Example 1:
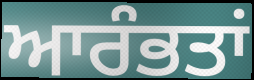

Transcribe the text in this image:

ਆਰੰਭਤਾਂ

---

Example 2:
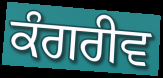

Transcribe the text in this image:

ਕੰਗਰੀਵ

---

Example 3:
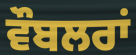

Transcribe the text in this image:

ਵੌਬਲਰਾਂ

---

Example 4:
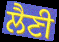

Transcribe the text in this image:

ਲੈਣੀ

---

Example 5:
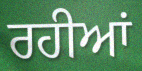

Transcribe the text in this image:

ਰਹੀਆਂ